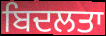
ਬਿਦਲਤਾ